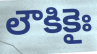
లౌకికైః